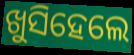
ଖୁସିହେଲେ